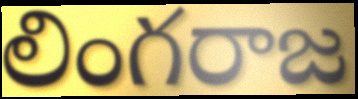
లింగరాజ